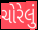
ચોરેલું